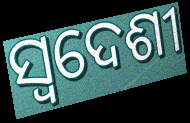
ସ୍ୱଦେଶୀ